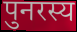
पुनरस्य